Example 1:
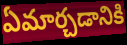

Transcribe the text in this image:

ఏమార్చడానికి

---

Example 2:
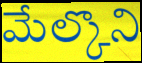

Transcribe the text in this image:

మేల్కొని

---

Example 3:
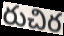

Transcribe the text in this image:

రుచిర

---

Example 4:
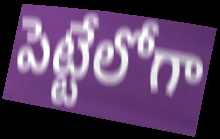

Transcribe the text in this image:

పెట్టేలోగా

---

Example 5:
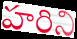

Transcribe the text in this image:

హరిని